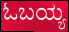
ಓಬಯ್ಯ